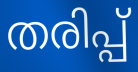
തരിപ്പ്